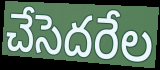
చేసెదరేల